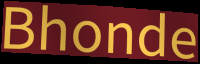
Bhonde